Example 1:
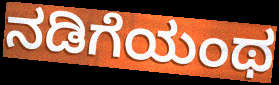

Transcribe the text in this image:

ನಡಿಗೆಯಂಥ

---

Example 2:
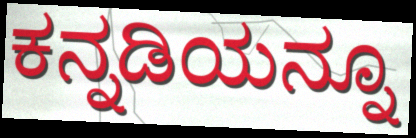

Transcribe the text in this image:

ಕನ್ನಡಿಯನ್ನೂ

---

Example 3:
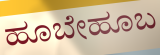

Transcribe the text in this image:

ಹೂಬೇಹೂಬ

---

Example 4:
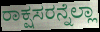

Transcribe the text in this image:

ರಾಕ್ಷಸರನ್ನೆಲ್ಲಾ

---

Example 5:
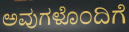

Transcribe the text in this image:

ಅವುಗಳೊಂದಿಗೆ